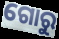
ଗୋରୁ